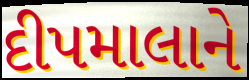
દીપમાલાને